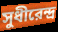
সুধীরেন্দ্র